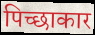
पिच्छाकार